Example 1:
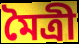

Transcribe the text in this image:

মৈত্ৰী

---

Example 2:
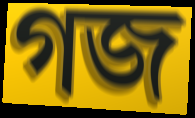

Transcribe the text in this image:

গজ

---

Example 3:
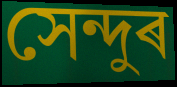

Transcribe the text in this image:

সেন্দুৰ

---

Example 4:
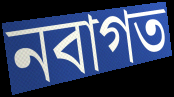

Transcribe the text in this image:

নবাগত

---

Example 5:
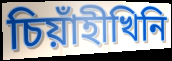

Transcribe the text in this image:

চিয়াঁহীখিনি